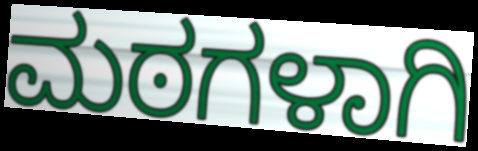
ಮಠಗಳಾಗಿ